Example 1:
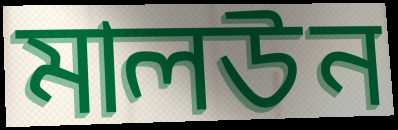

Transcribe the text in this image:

মালউন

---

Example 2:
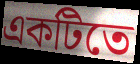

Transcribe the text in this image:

একটিতে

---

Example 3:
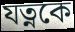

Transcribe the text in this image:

যত্নকে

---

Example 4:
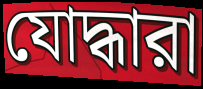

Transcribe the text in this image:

যোদ্ধারা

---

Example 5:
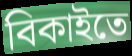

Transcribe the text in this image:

বিকাইতে